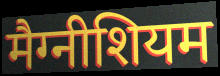
मैग्नीशियम